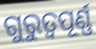
ଗୁରୁତ୍ବପୂର୍ଣ୍ଣ